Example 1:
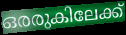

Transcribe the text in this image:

ഒരരുകിലേക്ക്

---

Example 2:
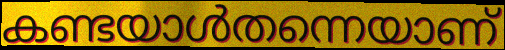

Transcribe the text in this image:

കണ്ടയാൾതന്നെയാണ്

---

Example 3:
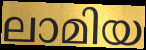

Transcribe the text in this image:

ലാമിയ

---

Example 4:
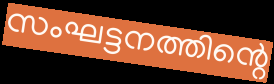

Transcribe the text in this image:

സംഘട്ടനത്തിന്റെ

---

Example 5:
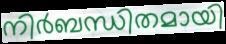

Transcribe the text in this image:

നിർബന്ധിതമായി